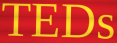
TEDs